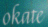
okate